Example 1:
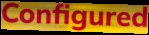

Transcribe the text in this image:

Configured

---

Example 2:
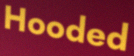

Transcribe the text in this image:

Hooded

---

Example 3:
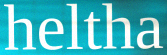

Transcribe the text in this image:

heltha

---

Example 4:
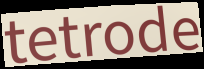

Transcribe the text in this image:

tetrode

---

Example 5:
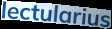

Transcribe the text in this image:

lectularius